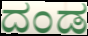
ದಂಡ